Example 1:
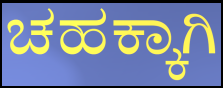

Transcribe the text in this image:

ಚಹಕ್ಕಾಗಿ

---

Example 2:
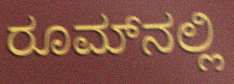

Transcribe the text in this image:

ರೂಮ್‌ನಲ್ಲಿ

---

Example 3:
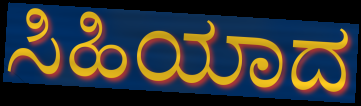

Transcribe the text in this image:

ಸಿಹಿಯಾದ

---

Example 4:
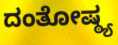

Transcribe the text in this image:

ದಂತೋಷ್ಠ್ಯ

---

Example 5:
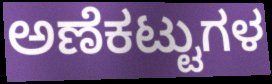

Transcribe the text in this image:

ಅಣೆಕಟ್ಟುಗಳ